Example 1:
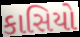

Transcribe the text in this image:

કાસિયો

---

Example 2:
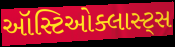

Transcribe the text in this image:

ઑસ્ટિઓક્લાસ્ટ્સ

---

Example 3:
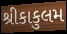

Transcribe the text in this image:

શ્રીકાકુલમ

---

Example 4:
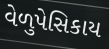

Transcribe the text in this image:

વેળુપેસિકાય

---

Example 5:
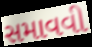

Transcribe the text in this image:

સમાવવી